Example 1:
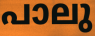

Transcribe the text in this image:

പാലു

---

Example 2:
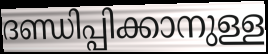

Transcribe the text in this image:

ദണ്ഡിപ്പിക്കാനുള്ള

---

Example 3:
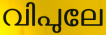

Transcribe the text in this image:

വിപുലേ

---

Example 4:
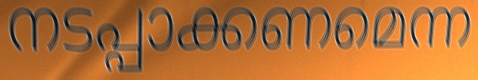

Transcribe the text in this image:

നടപ്പാക്കണമെന്ന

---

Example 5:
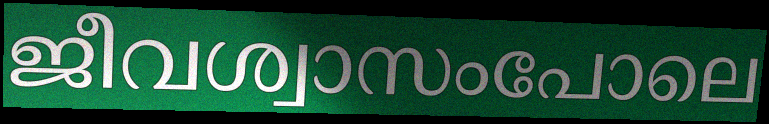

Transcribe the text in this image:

ജീവശ്വാസംപോലെ